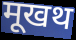
मूखथ